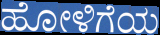
ಹೋಳಿಗೆಯ